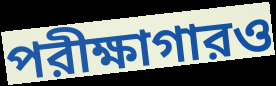
পরীক্ষাগারও